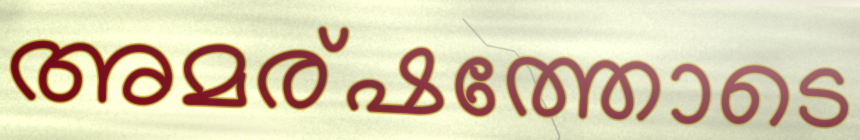
അമര്ഷത്തോടെ